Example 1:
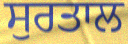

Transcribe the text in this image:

ਸੁਰਤਾਲ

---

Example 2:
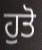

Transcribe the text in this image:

ਹੁਤੋ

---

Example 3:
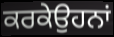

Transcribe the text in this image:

ਕਰਕੇਉਹਨਾਂ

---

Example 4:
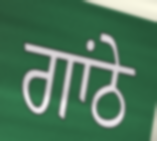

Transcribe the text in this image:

ਗਾਂਠੇ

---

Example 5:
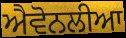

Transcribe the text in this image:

ਐਵੋਨਲੀਆ